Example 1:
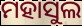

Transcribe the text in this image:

ମହାସୁଲ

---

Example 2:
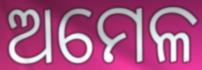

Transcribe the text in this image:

ଅମେଳ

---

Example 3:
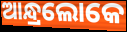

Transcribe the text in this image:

ଆନ୍ଧ୍ରଲୋକେ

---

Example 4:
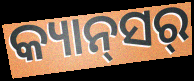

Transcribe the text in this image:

କ୍ୟାନ୍‍ସର୍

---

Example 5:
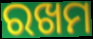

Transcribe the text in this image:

ରଖମ